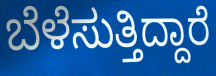
ಬೆಳೆಸುತ್ತಿದ್ದಾರೆ